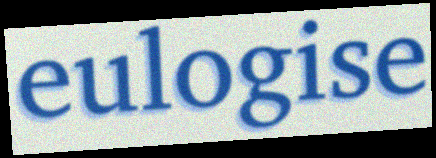
eulogise